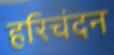
हरिचंदन